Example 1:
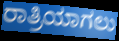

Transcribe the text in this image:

ರಾತ್ರಿಯಾಗಲು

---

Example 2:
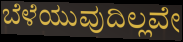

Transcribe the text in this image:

ಬೆಳೆಯುವುದಿಲ್ಲವೇ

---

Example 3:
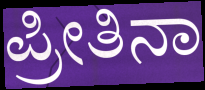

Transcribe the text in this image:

ಪ್ರೀತಿನಾ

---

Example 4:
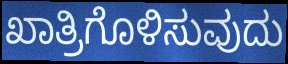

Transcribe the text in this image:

ಖಾತ್ರಿಗೊಳಿಸುವುದು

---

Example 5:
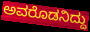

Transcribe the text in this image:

ಅವರೊಡನಿದ್ದು